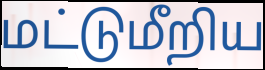
மட்டுமீறிய